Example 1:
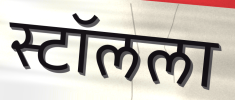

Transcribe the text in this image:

स्टॉलला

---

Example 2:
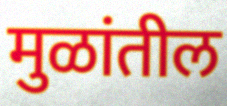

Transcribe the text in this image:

मुळांतील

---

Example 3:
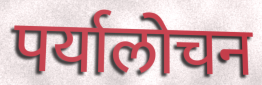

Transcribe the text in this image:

पर्यालोचन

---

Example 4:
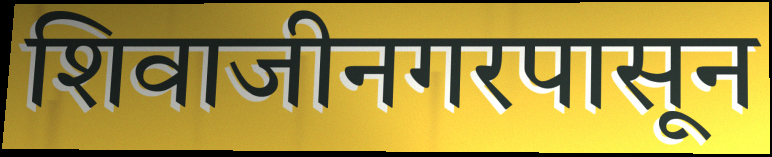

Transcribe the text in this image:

शिवाजीनगरपासून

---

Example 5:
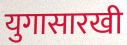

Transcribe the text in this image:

युगासारखी